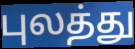
புலத்து